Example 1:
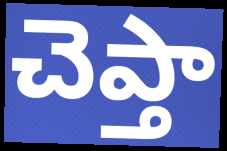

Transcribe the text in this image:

చెప్తా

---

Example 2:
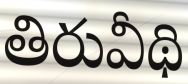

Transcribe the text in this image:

తిరువీథి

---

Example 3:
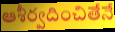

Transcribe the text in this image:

ఆశీర్వదించితేనే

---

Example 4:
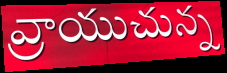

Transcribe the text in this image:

వ్రాయుచున్న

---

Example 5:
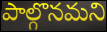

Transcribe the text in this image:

పాల్గొనమని